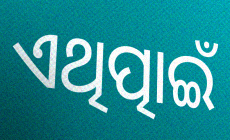
ଏଥିତ୍ପାଇଁ